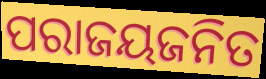
ପରାଜୟଜନିତ